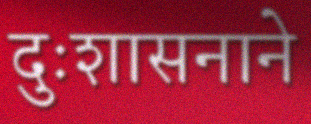
दुःशासनाने